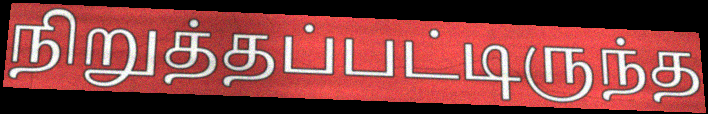
நிறுத்தப்பட்டிருந்த